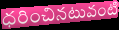
ధరించినటువంటి